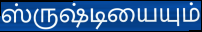
ஸ்ருஷ்டியையும்